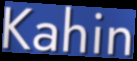
Kahin